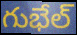
గుభేల్